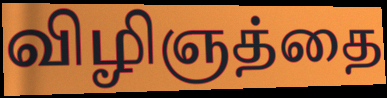
விழிஞத்தை